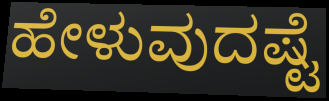
ಹೇಳುವುದಷ್ಟೆ